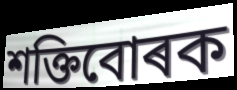
শক্তিবোৰক